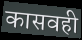
कासवही